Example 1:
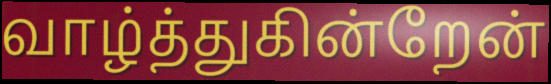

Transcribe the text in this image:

வாழ்த்துகின்றேன்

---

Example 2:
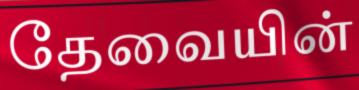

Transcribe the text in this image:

தேவையின்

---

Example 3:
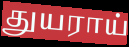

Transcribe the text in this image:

துயராய்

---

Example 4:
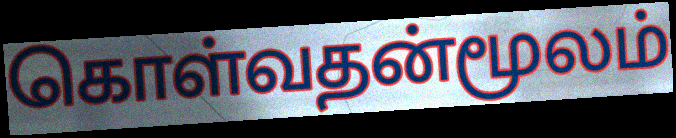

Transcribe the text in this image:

கொள்வதன்மூலம்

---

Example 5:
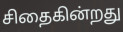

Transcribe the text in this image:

சிதைகின்றது